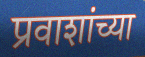
प्रवाशांच्या